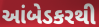
આંબેડકરથી